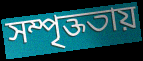
সম্পৃক্ততায়